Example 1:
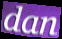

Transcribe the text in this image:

dan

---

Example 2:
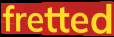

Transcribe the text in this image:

fretted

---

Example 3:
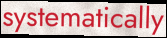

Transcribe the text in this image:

systematically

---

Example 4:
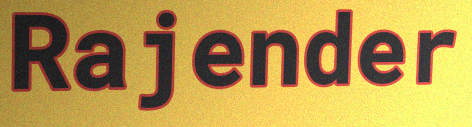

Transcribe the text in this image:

Rajender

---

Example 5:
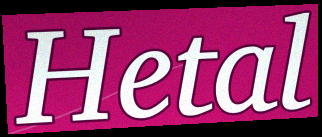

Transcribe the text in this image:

Hetal